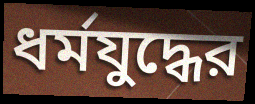
ধর্মযুদ্ধের